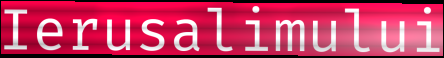
Ierusalimului